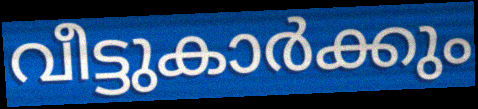
വീട്ടുകാർക്കും